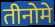
तीनोमे